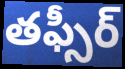
తఫ్సీర్